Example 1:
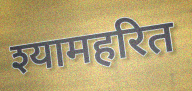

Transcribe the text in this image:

श्यामहरित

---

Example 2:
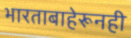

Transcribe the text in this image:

भारताबाहेरूनही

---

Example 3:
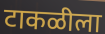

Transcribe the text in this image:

टाकळीला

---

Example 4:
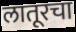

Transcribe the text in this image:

लातूरचा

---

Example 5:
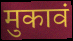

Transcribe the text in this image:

मुकावं